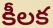
కీలక